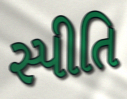
સ્પીતિ